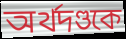
অর্থদণ্ডকে